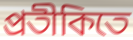
প্রতীকিতে